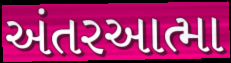
અંતરઆત્મા